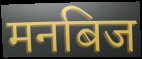
मनबिज